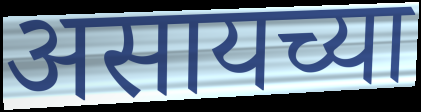
असायच्या